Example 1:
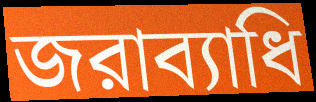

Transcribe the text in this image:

জরাব্যাধি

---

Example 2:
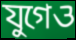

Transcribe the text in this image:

যুগেও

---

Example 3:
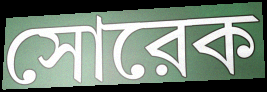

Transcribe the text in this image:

সোরেক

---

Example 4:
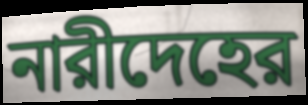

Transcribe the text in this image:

নারীদেহের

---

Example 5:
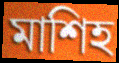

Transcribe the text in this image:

মাশিহ